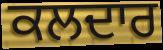
ਕਲਦਾਰ